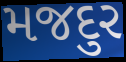
મજદુર